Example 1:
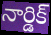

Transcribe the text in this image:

నార్డిక్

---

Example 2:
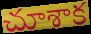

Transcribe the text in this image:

చూశాక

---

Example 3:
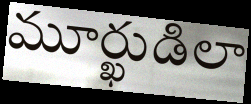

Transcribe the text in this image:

మూర్ఖుడిలా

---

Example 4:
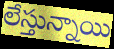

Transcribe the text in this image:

లేస్తున్నాయి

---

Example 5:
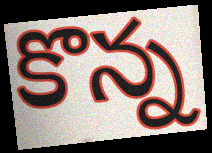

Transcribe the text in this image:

కొన్న